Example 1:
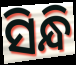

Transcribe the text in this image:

ସିନ୍ଧି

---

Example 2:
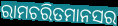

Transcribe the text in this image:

ରାମଚରିତମାନସର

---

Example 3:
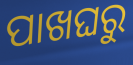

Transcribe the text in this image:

ପାଖଘରୁ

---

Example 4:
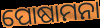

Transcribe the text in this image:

ପୋଷାମନା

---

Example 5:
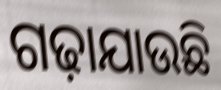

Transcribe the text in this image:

ଗଢ଼ାଯାଉଛି